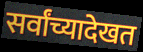
सर्वांच्यादेखत